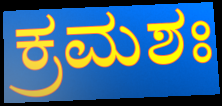
ಕ್ರಮಶಃ